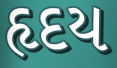
હૃદય